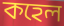
কহেল